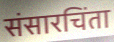
संसारचिंता